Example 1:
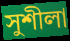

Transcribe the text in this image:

সুশীলা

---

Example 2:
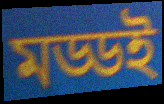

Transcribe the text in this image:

মড্ডই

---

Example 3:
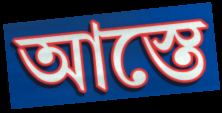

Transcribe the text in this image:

আস্তে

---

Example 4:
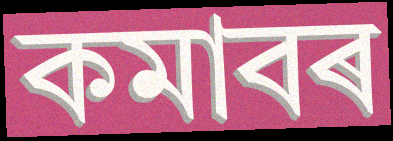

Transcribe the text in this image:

কমাবৰ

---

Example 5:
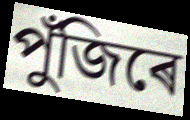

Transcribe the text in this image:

পুঁজিৰে